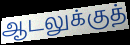
ஆடலுக்குத்